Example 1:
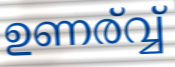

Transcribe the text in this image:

ഉണര്വ്വ്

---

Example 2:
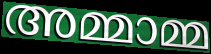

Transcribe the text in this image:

അമ്മാമ്മ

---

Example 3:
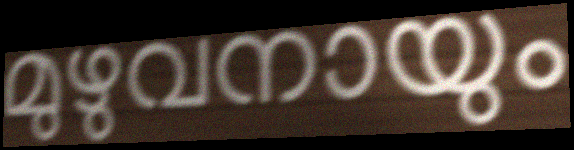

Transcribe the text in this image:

മുഴുവനായും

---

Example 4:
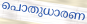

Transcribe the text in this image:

പൊതുധാരണ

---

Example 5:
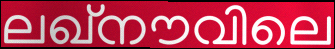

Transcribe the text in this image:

ലഖ്നൗവിലെ